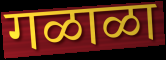
गळाळा